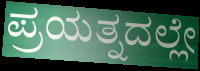
ಪ್ರಯತ್ನದಲ್ಲೇ